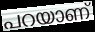
പറയാണ്